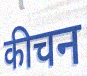
कीचन